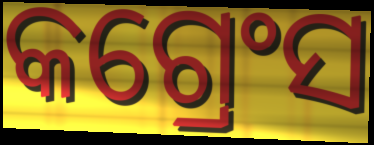
କଗ୍ରେଂସ